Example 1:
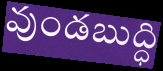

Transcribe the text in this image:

వుండబుద్ధి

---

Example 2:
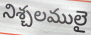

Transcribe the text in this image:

నిశ్చలములై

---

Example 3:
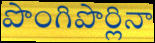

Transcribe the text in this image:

పొంగిపొర్లినా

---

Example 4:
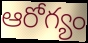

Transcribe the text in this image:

ఆరోగ్యం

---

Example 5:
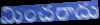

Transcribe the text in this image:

మించరాదు